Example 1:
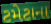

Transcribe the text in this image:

ટમેટાના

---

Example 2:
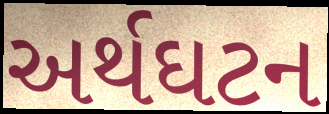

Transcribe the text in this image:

અર્થઘટન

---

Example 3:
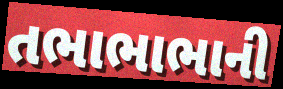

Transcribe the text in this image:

તભાભાભાની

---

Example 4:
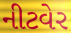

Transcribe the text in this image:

નીટવેર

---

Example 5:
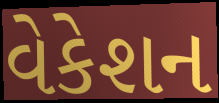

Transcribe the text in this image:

વેકેશન